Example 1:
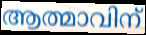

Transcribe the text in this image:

ആത്മാവിന്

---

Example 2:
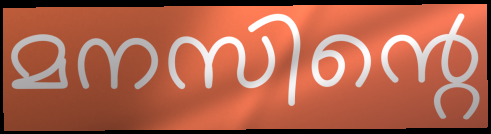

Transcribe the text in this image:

മനസിന്റെ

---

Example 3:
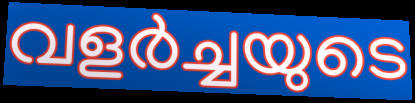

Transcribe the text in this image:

വളർച്ചയുടെ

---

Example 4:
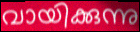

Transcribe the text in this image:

വായിക്കുന്നു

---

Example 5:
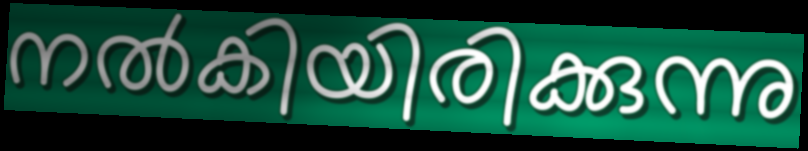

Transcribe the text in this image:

നൽകിയിരിക്കുന്നു